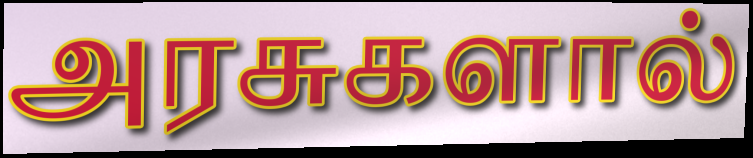
அரசுகளால்